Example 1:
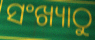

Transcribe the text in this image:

ସଂଖ୍ୟାଠୁ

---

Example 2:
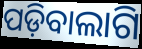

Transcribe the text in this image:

ପଡ଼ିବାଲାଗି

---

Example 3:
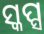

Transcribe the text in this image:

ସ୍କପ୍ସ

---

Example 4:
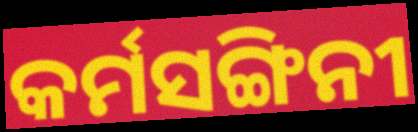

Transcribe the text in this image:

କର୍ମସଙ୍ଗିନୀ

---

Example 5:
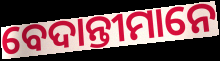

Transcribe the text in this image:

ବେଦାନ୍ତୀମାନେ